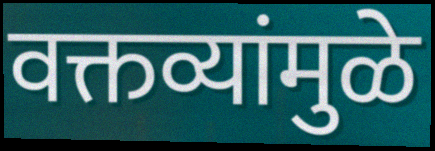
वक्तव्यांमुळे